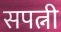
सपत्नी